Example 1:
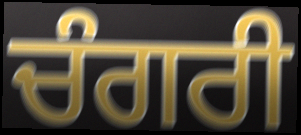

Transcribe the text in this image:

ਚੰਗਰੀ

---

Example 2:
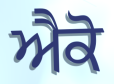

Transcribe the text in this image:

ਐਕੋ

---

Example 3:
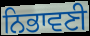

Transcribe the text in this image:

ਨਿਭਾਵਣੀ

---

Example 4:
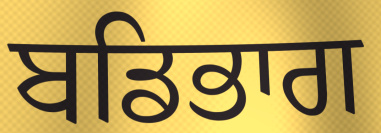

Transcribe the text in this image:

ਬਡਿਭਾਗ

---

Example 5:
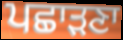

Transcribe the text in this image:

ਪਛਾੜਣਾ